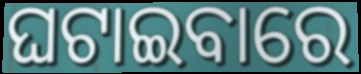
ଘଟାଇବାରେ